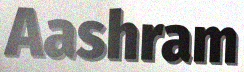
Aashram